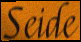
Seide